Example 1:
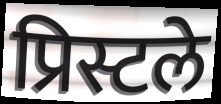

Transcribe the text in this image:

प्रिस्टले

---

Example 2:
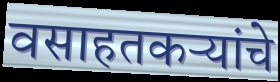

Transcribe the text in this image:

वसाहतकऱ्यांचे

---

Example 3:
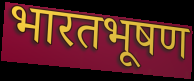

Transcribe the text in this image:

भारतभूषण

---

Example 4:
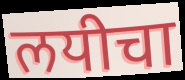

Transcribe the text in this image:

लयीचा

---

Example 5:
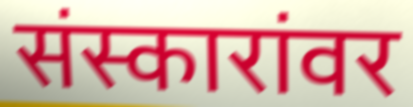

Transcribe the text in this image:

संस्कारांवर